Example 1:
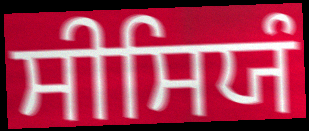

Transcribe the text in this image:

ਸੀਸਿਯੰ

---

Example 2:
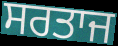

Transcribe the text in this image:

ਸਰਤਾਜ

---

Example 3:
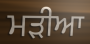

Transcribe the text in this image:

ਮੜੀਆ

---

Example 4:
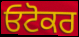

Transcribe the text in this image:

ਓਟੋਕਰ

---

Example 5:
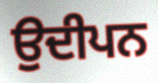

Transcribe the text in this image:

ਉਦੀਪਨ